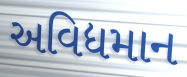
અવિદ્યમાન